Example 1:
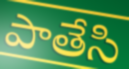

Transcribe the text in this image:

పాతేసి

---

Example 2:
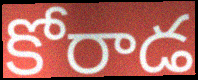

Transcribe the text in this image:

కోరాడ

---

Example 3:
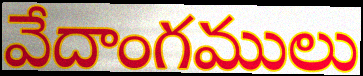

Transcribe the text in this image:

వేదాంగములు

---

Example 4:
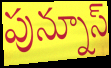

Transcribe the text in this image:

పున్నూస్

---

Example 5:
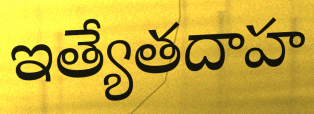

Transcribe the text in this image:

ఇత్యేతదాహ